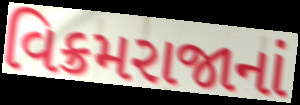
વિક્રમરાજાનાં